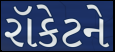
રૉકેટને